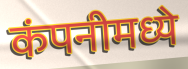
कंपनीमध्ये